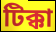
টিক্কা